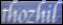
thozhil